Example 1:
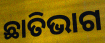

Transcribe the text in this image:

ଛାତିଭାଗ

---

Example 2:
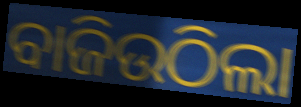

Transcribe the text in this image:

ବାଜିଉଠିଲା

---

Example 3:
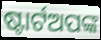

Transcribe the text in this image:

ଷ୍ଟାର୍ଟଅପଙ୍କ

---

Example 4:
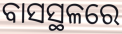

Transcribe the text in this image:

ବାସସ୍ଥଳରେ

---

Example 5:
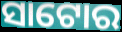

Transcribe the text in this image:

ସାଟୋର